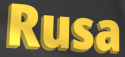
Rusa